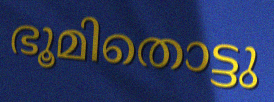
ഭൂമിതൊട്ടു